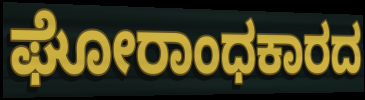
ಘೋರಾಂಧಕಾರದ